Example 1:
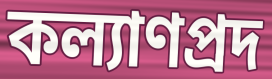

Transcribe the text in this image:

কল্যাণপ্রদ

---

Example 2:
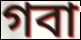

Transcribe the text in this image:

গবা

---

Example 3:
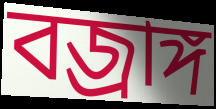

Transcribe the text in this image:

বজ্রাঙ্গ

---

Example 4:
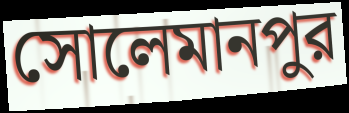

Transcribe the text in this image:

সোলেমানপুর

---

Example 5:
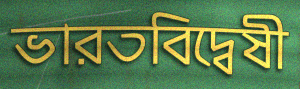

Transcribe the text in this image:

ভারতবিদ্বেষী